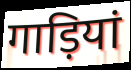
गाड़ियां